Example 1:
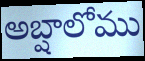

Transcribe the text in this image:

అబ్షాలోము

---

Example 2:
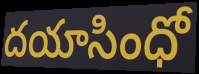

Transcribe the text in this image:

దయాసింధో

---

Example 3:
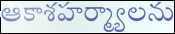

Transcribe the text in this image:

ఆకాశహర్మ్యాలను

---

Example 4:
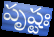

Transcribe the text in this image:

పృష్టః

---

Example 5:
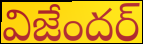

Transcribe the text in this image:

విజేందర్